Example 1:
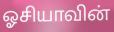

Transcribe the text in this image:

ஓசியாவின்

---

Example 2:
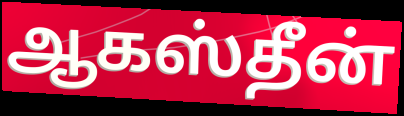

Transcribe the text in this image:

ஆகஸ்தீன்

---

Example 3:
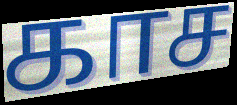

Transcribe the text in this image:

காச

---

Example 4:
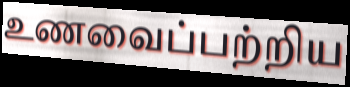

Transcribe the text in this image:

உணவைப்பற்றிய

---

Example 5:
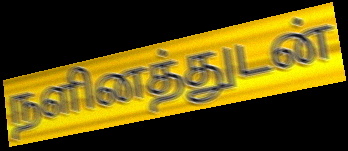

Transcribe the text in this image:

நளினத்துடன்